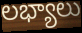
లభ్యాలు